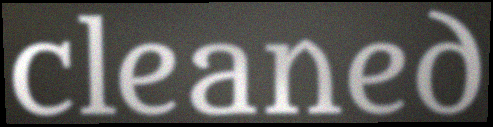
cleaned